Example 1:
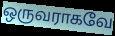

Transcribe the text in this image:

ஒருவராகவே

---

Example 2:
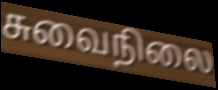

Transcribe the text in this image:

சுவைநிலை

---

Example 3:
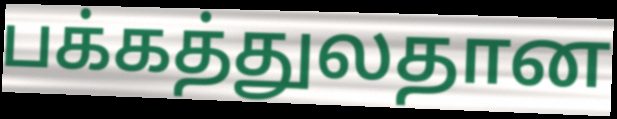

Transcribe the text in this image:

பக்கத்துலதான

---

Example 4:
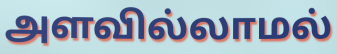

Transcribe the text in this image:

அளவில்லாமல்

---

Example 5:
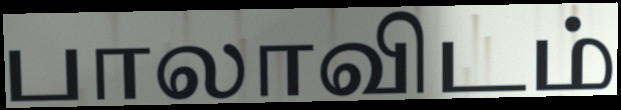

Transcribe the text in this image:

பாலாவிடம்